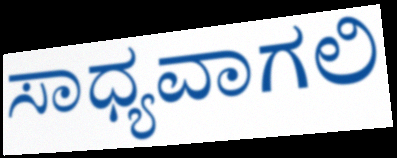
ಸಾಧ್ಯವಾಗಲಿ